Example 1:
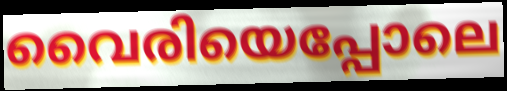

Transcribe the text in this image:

വൈരിയെപ്പോലെ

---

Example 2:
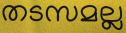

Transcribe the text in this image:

തടസമല്ല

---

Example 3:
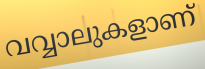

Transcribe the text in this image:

വവ്വാലുകളാണ്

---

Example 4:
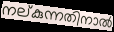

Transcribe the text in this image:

നല്കുന്നതിനാൽ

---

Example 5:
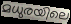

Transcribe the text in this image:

മധുരയിലെ